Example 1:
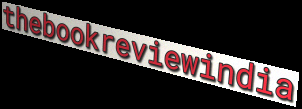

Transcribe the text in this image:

thebookreviewindia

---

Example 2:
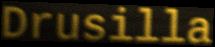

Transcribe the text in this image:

Drusilla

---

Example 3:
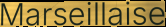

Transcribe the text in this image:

Marseillaise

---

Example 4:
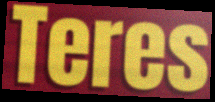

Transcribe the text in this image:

Teres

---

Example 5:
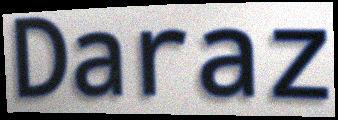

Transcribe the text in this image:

Daraz